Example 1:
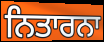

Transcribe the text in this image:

ਨਿਤਾਰਨਾ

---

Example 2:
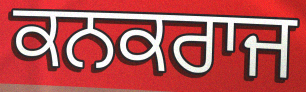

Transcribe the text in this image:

ਕਨਕਰਾਜ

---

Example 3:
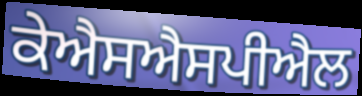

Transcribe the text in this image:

ਕੇਐਸਐਸਪੀਐਲ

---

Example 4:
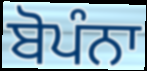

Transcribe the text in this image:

ਬੋਪੰਨਾ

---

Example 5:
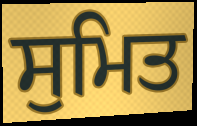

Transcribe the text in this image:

ਸੁਮਿਤ